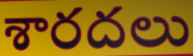
శారదలు